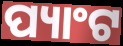
ପ୍ୟାଂଟ